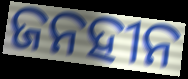
ଜନହୀନ